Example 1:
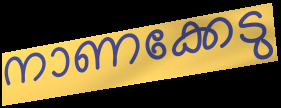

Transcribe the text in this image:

നാണക്കേടു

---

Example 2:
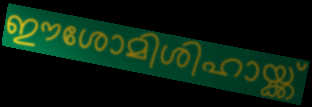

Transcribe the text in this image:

ഈശോമിശിഹായ്ക്ക്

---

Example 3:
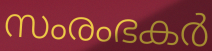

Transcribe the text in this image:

സംരംഭകർ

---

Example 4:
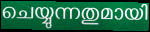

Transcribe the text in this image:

ചെയ്യുന്നതുമായി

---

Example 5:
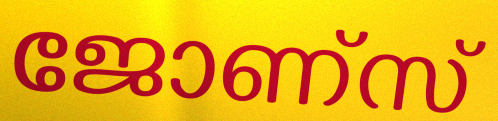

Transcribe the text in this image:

ജോണ്സ്